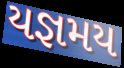
યજ્ઞમય